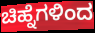
ಚಿಹ್ನೆಗಳಿಂದ